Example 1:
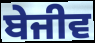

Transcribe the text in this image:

ਬੇਜੀਵ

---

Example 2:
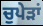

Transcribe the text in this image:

ਚੁਪੇੜਾਂ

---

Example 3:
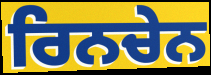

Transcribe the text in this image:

ਰਿਨਚੇਨ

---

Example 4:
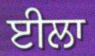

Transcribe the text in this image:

ਈਲਾ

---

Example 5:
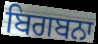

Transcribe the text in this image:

ਬਿਗਬਨਾ